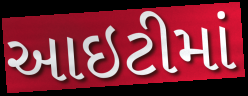
આઇટીમાં